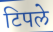
टिपले